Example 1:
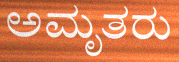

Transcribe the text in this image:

ಅಮೃತರು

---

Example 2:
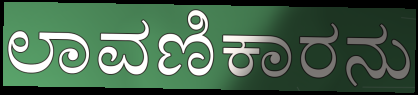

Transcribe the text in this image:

ಲಾವಣಿಕಾರನು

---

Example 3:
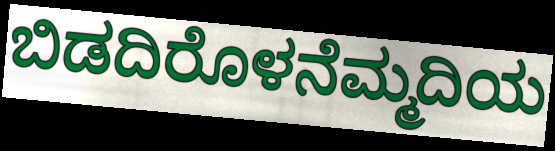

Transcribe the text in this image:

ಬಿಡದಿರೊಳನೆಮ್ಮದಿಯ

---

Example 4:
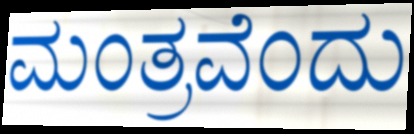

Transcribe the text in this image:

ಮಂತ್ರವೆಂದು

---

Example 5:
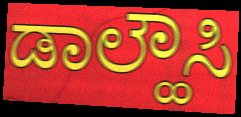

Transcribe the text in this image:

ಡಾಲ್ಹೌಸಿ